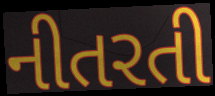
નીતરતી